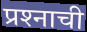
प्रश्‍नाची